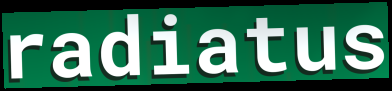
radiatus